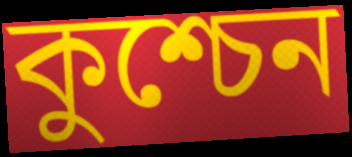
কুশ্চেন